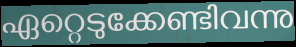
ഏറ്റെടുക്കേണ്ടിവന്നു